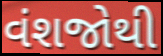
વંશજોથી